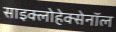
साइक्लोहेक्सेनॉल